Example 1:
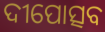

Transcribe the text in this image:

ଦୀପୋତ୍ସବ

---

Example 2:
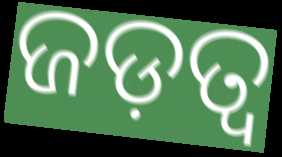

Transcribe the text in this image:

ଜଡ଼ତ୍ଵ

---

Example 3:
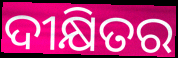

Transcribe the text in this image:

ଦୀକ୍ଷିତର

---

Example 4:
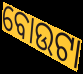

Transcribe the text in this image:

ବୋଉଟା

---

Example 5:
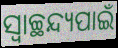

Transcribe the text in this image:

ସ୍ୱାଚ୍ଛନ୍ଦ୍ୟପାଇଁ